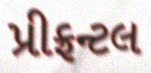
પ્રીફ્રન્ટલ